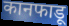
कानफाडू